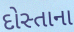
દોસ્તાના